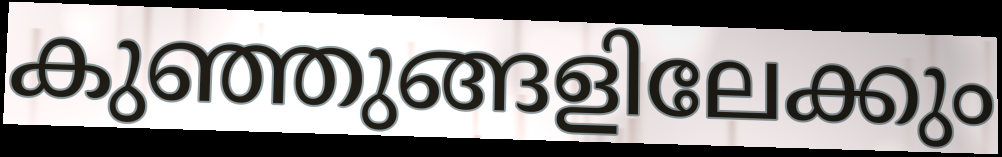
കുഞ്ഞുങ്ങളിലേക്കും